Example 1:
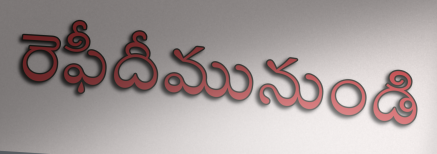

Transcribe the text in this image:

రెఫీదీమునుండి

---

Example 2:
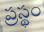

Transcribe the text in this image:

ప్రస్థం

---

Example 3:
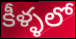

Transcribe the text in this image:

కీళ్ళలో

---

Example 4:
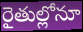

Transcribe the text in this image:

రైతుల్లోనూ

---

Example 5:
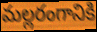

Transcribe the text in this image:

మల్లరంగానికి